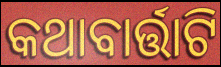
କଥାବାର୍ତ୍ତାଟି